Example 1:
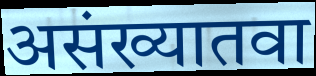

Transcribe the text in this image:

असंख्यातवा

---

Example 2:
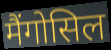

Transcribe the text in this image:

मैंगोसिल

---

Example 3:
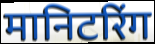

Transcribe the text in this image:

मानिटरिंग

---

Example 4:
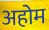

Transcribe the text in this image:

अहोम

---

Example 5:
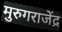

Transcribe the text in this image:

मुरुगराजेंद्र